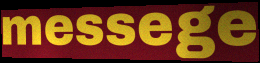
messege